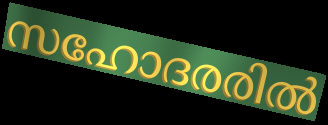
സഹോദരരിൽ